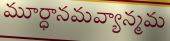
మూర్ధానమవ్యాన్మమ